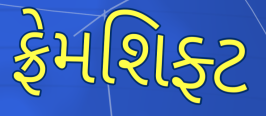
ફ્રેમશિફ્ટ